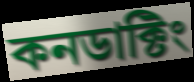
কনডাক্টিং